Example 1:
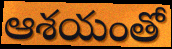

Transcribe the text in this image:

ఆశయంతో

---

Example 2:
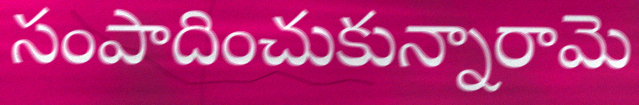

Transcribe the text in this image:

సంపాదించుకున్నారామె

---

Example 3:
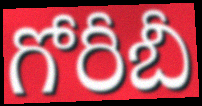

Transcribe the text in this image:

గోరీబీ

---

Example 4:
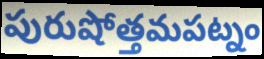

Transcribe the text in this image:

పురుషోత్తమపట్నం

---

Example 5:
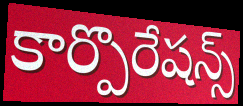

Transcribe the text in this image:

కార్పొరేషన్స్